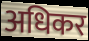
अधिकर